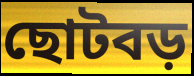
ছোটবড়